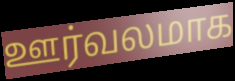
ஊர்வலமாக